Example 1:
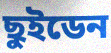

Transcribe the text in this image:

ছুইডেন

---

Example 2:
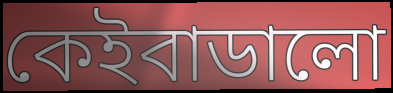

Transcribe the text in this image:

কেইবাডালো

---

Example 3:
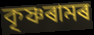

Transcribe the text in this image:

কৃষ্ণৰামৰ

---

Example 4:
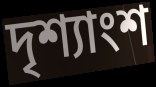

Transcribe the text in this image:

দৃশ্যাংশ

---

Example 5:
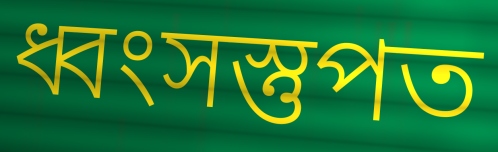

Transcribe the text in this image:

ধ্বংসস্তুপত